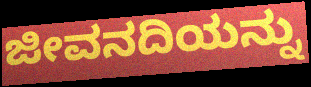
ಜೀವನದಿಯನ್ನು